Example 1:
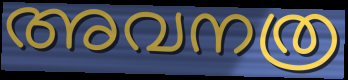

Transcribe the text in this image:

അവനത്ര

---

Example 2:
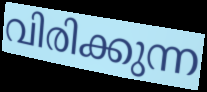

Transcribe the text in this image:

വിരിക്കുന്ന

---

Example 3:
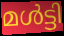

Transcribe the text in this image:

മൾട്ടി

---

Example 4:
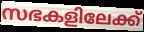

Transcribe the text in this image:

സഭകളിലേക്ക്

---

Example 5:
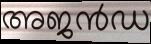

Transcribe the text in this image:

അജൻഡ